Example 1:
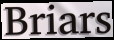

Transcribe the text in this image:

Briars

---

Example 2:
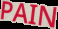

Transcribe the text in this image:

PAIN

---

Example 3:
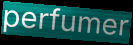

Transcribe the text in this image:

perfumer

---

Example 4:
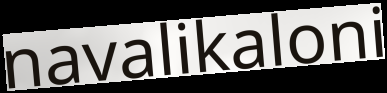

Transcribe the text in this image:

navalikaloni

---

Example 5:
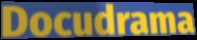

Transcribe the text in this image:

Docudrama